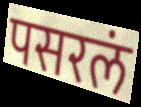
पसरलं